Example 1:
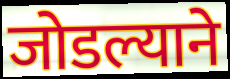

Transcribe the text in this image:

जोडल्याने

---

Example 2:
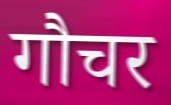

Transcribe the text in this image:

गौचर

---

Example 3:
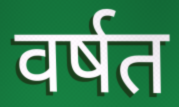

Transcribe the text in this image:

वर्षत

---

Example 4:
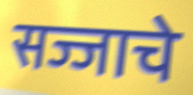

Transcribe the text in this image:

सज्जाचे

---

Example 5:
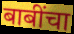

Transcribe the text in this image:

बाबींचा